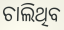
ଚାଲିଥିବ